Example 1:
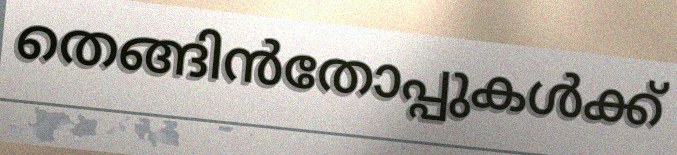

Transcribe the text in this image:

തെങ്ങിൻതോപ്പുകൾക്ക്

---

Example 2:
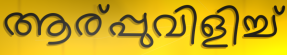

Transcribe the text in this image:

ആര്പ്പുവിളിച്ച്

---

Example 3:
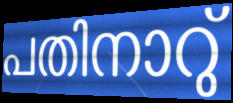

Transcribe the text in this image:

പതിനാറു്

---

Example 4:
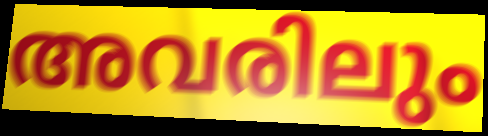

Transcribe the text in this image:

അവരിലും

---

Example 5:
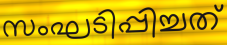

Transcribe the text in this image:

സംഘടിപ്പിച്ചത്